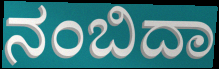
ನಂಬಿದಾ